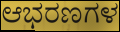
ಆಭರಣಗಳ